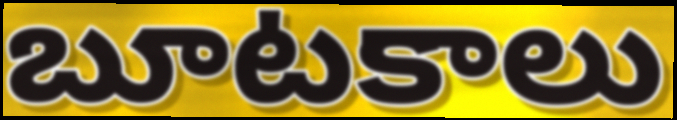
బూటకాలు